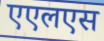
एएलएस